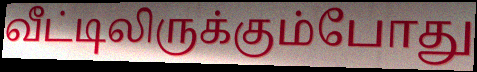
வீட்டிலிருக்கும்போது